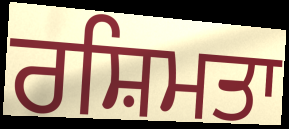
ਰਸ਼ਿਮਤਾ